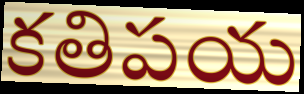
కతిపయ